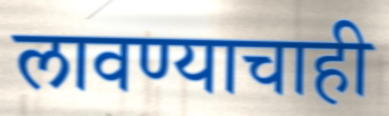
लावण्याचाही